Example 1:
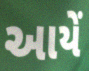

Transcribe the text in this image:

આયેં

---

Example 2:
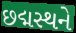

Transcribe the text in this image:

છદ્મસ્થને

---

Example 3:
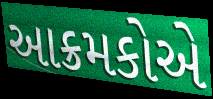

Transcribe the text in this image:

આક્રમકોએ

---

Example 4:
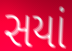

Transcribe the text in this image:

સયાં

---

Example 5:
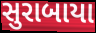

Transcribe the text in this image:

સુરાબાયા